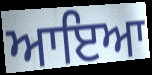
ਆਇਆ